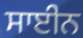
ਸਾਈਨ